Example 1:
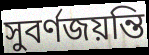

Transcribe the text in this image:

সুবর্ণজয়ন্তি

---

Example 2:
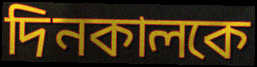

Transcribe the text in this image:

দিনকালকে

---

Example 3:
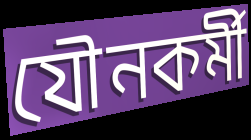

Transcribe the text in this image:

যৌনকর্মী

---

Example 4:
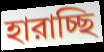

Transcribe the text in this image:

হারাচ্ছি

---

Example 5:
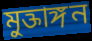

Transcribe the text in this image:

মুক্তাঙ্গন